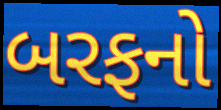
બરફનો